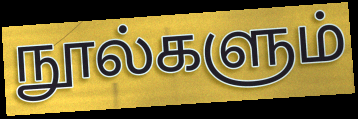
நூல்களும்